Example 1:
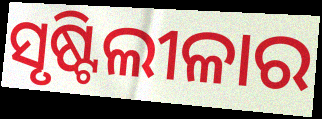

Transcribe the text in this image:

ସୃଷ୍ଟିଲୀଳାର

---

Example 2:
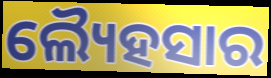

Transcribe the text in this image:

ଲ୍ୟୈହସାର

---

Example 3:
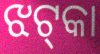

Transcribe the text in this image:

ଝଟ୍‍କା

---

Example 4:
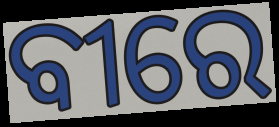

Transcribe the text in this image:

ବୀରେ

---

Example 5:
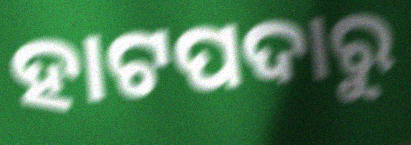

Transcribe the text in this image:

ହାଟପଦାରୁ